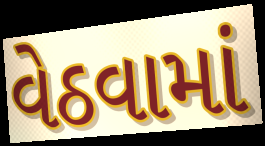
વેઠવામાં